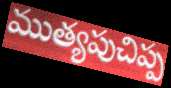
ముత్యపుచిప్ప